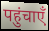
पहुंचाएँ